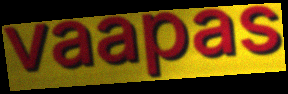
vaapas